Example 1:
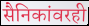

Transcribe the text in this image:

सैनिकांवरही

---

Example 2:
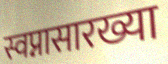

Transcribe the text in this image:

स्वप्नासारख्या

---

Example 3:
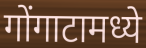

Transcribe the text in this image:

गोंगाटामध्ये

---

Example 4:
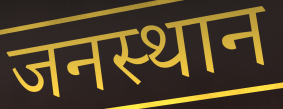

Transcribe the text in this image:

जनस्थान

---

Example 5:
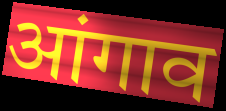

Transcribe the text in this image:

आंगाव